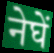
नेघें